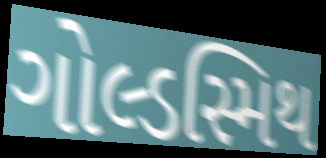
ગોલ્ડસ્મિથ